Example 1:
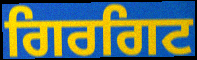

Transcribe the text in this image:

ਗਿਰਗਿਟ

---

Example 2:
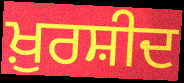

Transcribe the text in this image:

ਖ਼ੁਰਸ਼ੀਦ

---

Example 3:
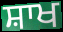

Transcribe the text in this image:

ਸ਼ਾਖ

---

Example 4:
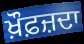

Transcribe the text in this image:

ਖ਼ੌਫ਼ਜ਼ਦਾ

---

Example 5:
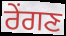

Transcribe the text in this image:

ਰੇਂਗਣ